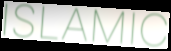
ISLAMIC